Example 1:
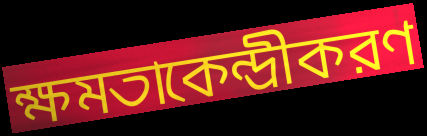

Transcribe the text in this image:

ক্ষমতাকেন্দ্রীকরণ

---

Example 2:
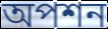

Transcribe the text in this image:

অপশন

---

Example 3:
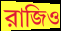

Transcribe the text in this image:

রাজিও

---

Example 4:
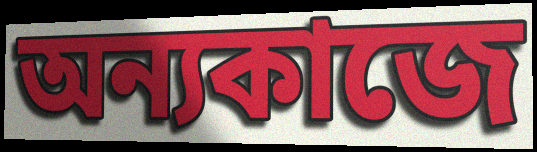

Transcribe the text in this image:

অন্যকাজে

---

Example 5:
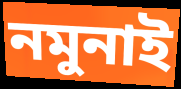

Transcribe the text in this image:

নমুনাই